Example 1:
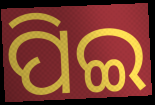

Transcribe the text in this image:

ପିଇ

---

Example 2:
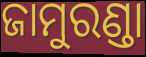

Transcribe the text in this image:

ଜାମୁରଣ୍ଡା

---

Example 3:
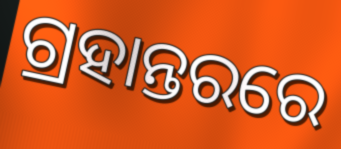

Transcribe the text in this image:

ଗ୍ରହାନ୍ତରରେ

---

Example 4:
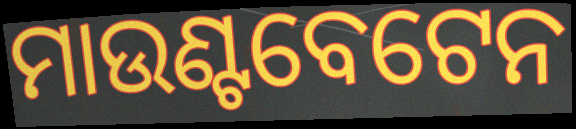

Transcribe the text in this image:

ମାଉଣ୍ଟବେଟେନ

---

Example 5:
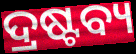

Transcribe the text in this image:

ଦ୍ରଷ୍ଟବ୍ୟ